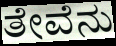
ತೇವೆನು